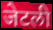
जेटली